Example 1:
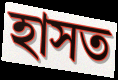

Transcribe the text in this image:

হাসত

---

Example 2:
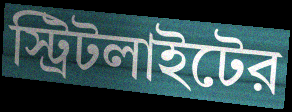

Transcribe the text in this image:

স্ট্রিটলাইটের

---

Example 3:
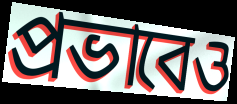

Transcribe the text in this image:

প্রভাবেও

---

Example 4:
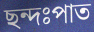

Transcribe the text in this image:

ছন্দঃপাত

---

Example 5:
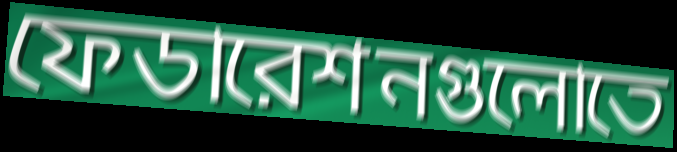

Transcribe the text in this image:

ফেডারেশনগুলোতে